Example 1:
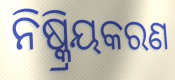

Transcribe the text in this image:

ନିଷ୍କ୍ରିୟକରଣ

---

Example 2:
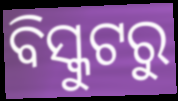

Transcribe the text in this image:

ବିସ୍କୁଟରୁ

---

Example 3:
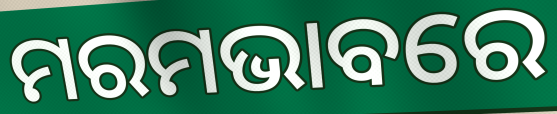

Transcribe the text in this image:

ମରମଭାବରେ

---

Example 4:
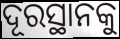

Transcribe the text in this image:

ଦୂରସ୍ଥାନକୁ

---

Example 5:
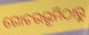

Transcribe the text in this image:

ଗୋଚରଭୂମିଠାରୁ